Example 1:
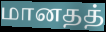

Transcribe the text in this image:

மானதத்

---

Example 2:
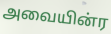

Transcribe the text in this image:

அவையின்ர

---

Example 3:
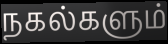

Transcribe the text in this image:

நகல்களும்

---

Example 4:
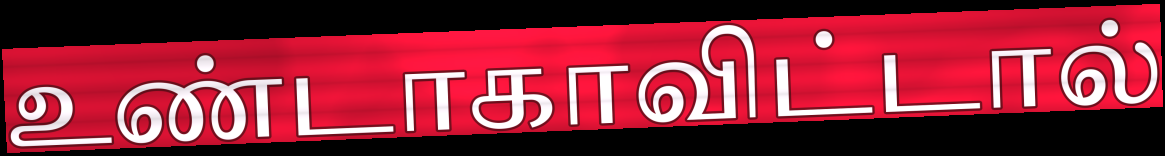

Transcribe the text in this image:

உண்டாகாவிட்டால்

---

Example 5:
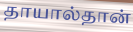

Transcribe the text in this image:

தாயால்தான்